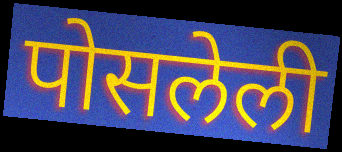
पोसलेली